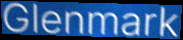
Glenmark